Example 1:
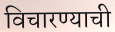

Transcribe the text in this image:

विचारण्याची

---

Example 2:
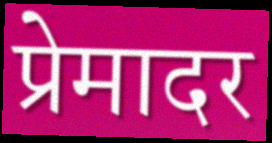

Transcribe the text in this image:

प्रेमादर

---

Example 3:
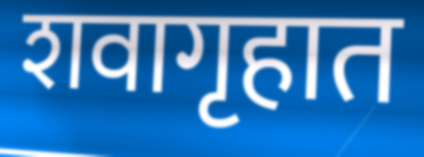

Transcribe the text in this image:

शवागृहात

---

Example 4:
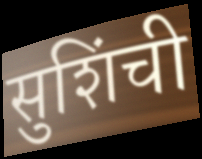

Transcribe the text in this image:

सुशिंची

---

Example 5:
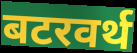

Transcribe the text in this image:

बटरवर्थ